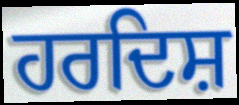
ਹਰਦਿਸ਼